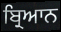
ਬ੍ਰਿਆਨ